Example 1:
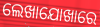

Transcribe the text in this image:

ଲେଖାଯୋଖାରେ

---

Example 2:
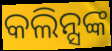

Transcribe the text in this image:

କଲିନ୍ସଙ୍କ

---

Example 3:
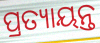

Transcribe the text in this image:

ପ୍ରତ୍ୟାୟନ୍ତ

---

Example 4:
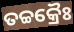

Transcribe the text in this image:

ତଚ୍ଚକ୍ରୈଃ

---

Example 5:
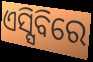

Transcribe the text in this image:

ଏସ୍ସିବିରେ